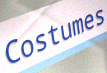
Costumes